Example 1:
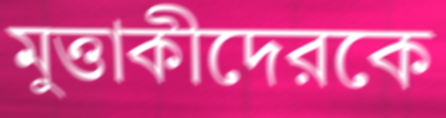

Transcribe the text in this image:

মুত্তাকীদেরকে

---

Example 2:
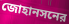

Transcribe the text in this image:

জোহানসনের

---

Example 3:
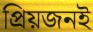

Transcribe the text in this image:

প্রিয়জনই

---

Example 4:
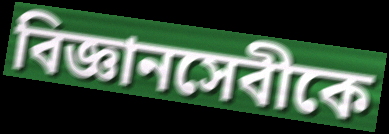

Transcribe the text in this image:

বিজ্ঞানসেবীকে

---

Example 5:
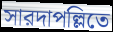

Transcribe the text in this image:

সারদাপল্লিতে